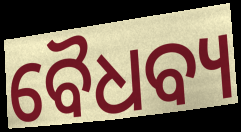
ବୈଧବ୍ୟ